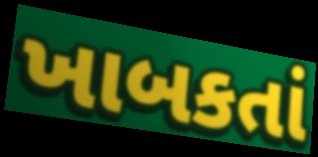
ખાબકતાં